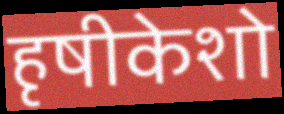
हृषीकेशो